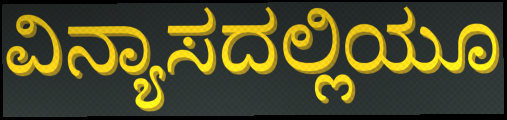
ವಿನ್ಯಾಸದಲ್ಲಿಯೂ